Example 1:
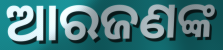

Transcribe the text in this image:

ଆରଜଣଙ୍କ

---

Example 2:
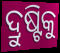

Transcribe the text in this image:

ଦ୍ରୁଷ୍ଟିକୁ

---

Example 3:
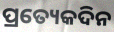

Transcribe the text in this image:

ପ୍ରତ୍ୟେକଦିନ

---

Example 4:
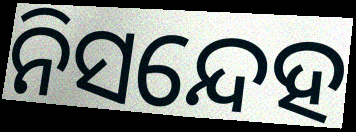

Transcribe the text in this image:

ନିସନ୍ଦେହ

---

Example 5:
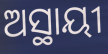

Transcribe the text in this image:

ଅସ୍ଥାୟୀ